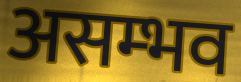
असम्‍भव